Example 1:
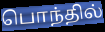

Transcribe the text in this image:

பொந்தில்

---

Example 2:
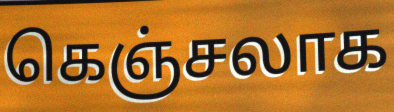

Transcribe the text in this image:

கெஞ்சலாக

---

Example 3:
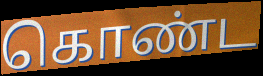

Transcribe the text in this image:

கொண்ட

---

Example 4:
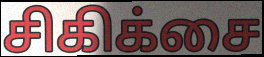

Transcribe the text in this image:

சிகிக்சை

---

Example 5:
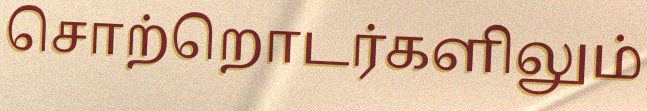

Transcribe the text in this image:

சொற்றொடர்களிலும்